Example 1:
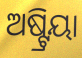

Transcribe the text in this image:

ଅଷ୍ଟ୍ରିୟା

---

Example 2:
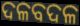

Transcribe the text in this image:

ଦଳବଦଳ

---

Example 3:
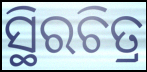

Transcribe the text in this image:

ସ୍ଥିରଚିତ୍ର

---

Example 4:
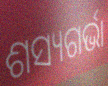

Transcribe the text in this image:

ଶସ୍ୟଗର୍ଭା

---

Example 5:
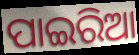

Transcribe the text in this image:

ପାଇରିଆ